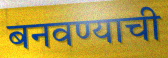
बनवण्याची